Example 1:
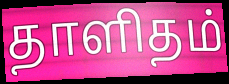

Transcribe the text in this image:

தாளிதம்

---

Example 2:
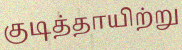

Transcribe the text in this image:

குடித்தாயிற்று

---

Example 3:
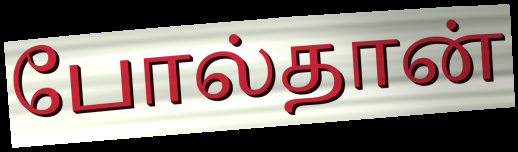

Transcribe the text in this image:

போல்தான்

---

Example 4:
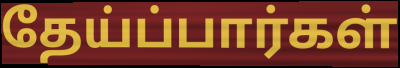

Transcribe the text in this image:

தேய்ப்பார்கள்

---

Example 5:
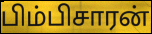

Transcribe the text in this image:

பிம்பிசாரன்